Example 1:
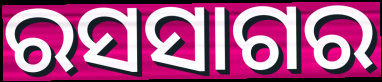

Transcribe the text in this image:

ରସସାଗର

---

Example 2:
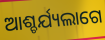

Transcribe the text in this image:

ଆଶ୍ଚର୍ଯ୍ୟଲାଗେ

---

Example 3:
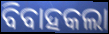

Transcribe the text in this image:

ବିବାହକଲା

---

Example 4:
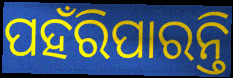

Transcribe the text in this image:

ପହଁରିପାରନ୍ତି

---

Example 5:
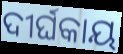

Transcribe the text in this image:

ଦୀର୍ଘକାୟ